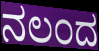
ನಲಂದ